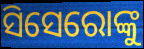
ସିସେରୋଙ୍କୁ